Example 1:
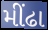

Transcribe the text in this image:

મીંઢા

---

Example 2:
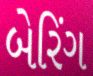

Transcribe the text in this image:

બેરિંગ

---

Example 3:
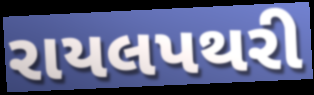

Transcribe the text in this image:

રાયલપથરી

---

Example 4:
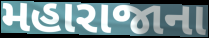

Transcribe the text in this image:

મહારાજાના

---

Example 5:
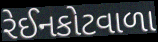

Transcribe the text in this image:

રેઈનકોટવાળા